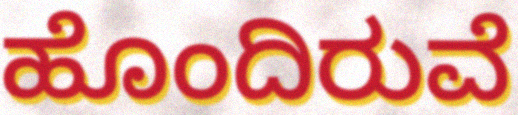
ಹೊಂದಿರುವೆ